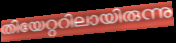
തിയേറ്ററിലായിരുന്നു